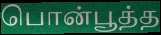
பொன்பூத்த